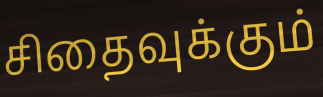
சிதைவுக்கும்